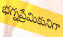
భగ్నప్రేమికునిగా